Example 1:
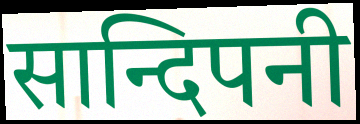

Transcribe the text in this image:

सान्दिपनी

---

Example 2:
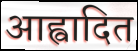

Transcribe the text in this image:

आह्वादित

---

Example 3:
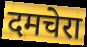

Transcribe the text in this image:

दमचेरा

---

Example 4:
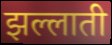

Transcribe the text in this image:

झल्लाती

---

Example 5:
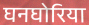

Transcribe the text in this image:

घनघोरिया